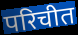
परिचीत